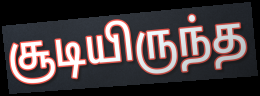
சூடியிருந்த